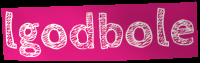
lgodbole